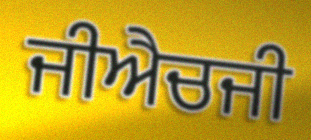
ਜੀਐਚਜੀ